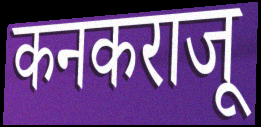
कनकराजू